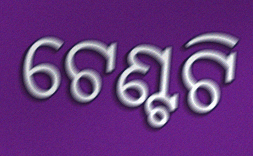
ଟେଣ୍ଟଟି